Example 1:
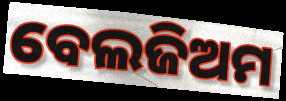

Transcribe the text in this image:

ବେଲଜିଅମ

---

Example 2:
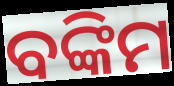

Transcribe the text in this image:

ବଙ୍କିମ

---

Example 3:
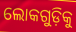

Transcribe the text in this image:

ଲୋକଗୁଡ଼ିକୁ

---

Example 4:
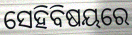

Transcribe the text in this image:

ସେହିବିଷୟରେ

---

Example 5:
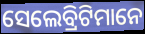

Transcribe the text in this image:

ସେଲେବ୍ରିଟିମାନେ